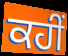
ਕਹੀਂ